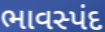
ભાવસ્પંદ